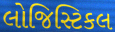
લોજિસ્ટિકલ